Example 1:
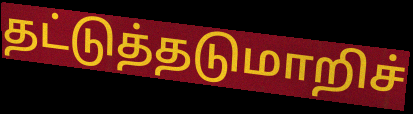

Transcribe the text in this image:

தட்டுத்தடுமாறிச்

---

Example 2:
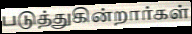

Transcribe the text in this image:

படுத்துகின்றார்கள்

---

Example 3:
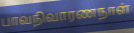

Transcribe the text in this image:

பாவநிவாரணநாள்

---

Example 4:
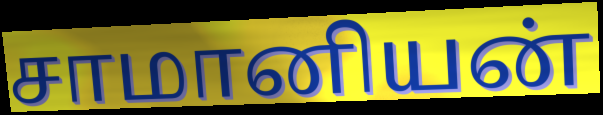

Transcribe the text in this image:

சாமானியன்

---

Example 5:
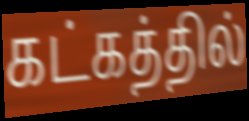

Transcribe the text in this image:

கட்கத்தில்